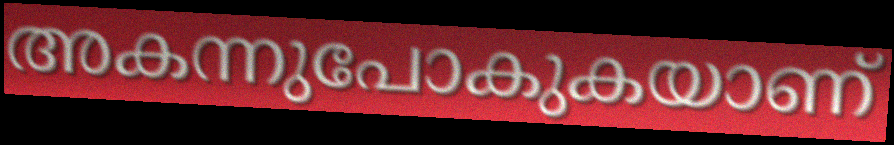
അകന്നുപോകുകയാണ്